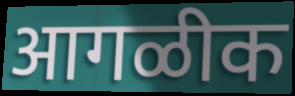
आगळीक